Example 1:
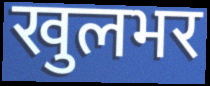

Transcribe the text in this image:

खुलभर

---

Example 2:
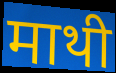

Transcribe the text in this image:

माथी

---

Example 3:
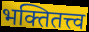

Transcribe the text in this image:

भक्तितत्त्व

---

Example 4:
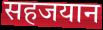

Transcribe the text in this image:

सहजयान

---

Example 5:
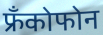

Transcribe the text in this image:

फ्रँकोफोन